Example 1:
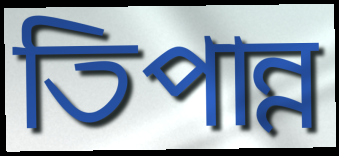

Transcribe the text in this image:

তিপান্ন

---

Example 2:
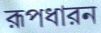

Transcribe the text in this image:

রূপধারন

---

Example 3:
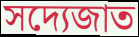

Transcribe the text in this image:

সদ্যেজাত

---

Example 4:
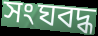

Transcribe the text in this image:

সংঘবদ্ধ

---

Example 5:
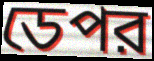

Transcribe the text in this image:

ডেপর